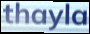
thayla